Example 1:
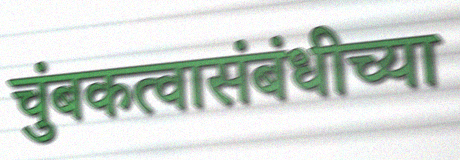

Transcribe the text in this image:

चुंबकत्वासंबंधीच्या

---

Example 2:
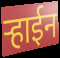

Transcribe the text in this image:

ऱ्हाईन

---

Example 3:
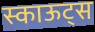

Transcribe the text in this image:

स्काऊट्स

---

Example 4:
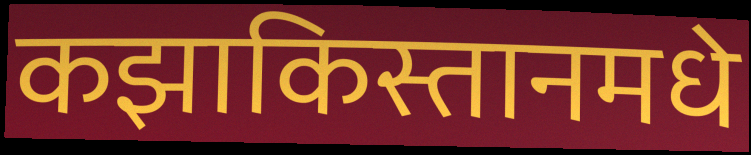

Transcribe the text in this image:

कझाकिस्तानमधे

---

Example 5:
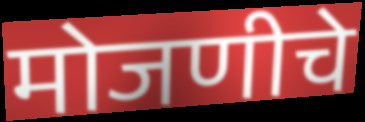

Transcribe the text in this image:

मोजणीचे